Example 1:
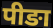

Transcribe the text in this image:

पीङा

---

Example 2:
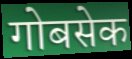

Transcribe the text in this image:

गोबसेक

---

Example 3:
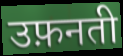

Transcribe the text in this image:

उफ़नती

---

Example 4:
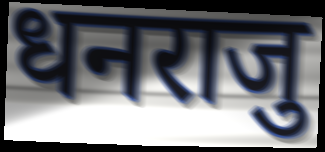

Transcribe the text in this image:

धनराजु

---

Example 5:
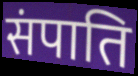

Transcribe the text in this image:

संपाति